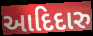
આદિદારુ